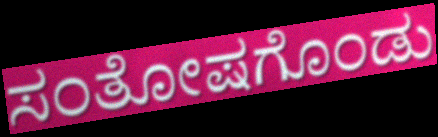
ಸಂತೋಷಗೊಂಡು